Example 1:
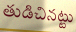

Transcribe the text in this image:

తుడిచినట్టు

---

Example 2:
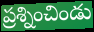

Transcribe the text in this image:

ప్రశ్నించిండు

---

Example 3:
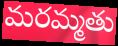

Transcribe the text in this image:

మరమ్మతు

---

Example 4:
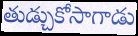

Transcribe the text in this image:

తుడ్చుకోసాగాడు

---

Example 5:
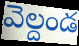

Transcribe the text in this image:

వెల్దండ